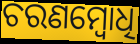
ଚରଣମ୍ବୋଧି